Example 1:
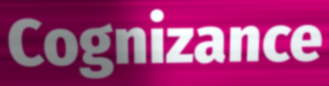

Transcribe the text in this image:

Cognizance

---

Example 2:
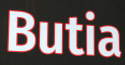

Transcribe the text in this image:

Butia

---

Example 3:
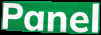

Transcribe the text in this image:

Panel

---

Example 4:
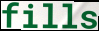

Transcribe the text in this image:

fills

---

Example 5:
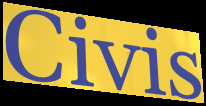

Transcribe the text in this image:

Civis